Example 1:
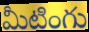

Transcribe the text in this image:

మీటింగు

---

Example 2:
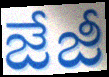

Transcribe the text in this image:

జేజీ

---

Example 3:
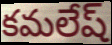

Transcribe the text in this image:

కమలేష్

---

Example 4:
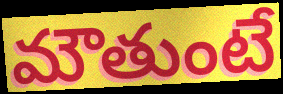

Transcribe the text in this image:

మౌతుంటే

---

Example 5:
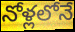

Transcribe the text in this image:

నోళ్లలోనే